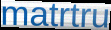
matrtru